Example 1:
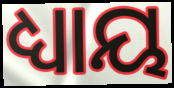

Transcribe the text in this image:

ଧ୍ୟାୟ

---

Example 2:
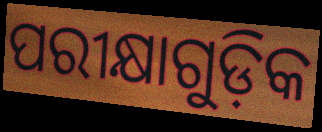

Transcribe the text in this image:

ପରୀକ୍ଷାଗୁଡ଼ିକ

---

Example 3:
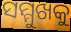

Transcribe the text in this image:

ସମ୍ମୁଖକୁ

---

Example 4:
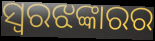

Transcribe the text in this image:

ସ୍ୱରଝଙ୍କାରର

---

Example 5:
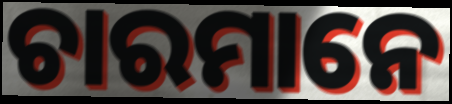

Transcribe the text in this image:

ଚାରମାନେ